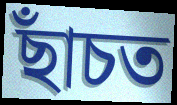
ছাঁচত